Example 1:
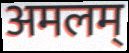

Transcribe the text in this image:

अमलम्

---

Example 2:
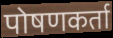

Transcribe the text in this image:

पोषणकर्ता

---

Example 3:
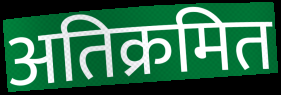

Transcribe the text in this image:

अतिक्रमित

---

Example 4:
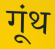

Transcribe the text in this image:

गूंथ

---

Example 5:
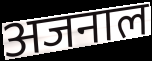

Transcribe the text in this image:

अजनाल